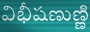
విభీషణుణ్ణి